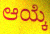
ಆಯ್ಕೆ